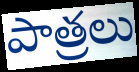
పాత్రలు